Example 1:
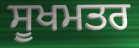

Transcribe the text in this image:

ਸੂਖਮਤਰ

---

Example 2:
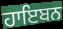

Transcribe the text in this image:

ਹਾਇਬਨ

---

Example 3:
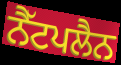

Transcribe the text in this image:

ਨੈੱਟਪਲੈਨ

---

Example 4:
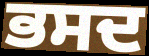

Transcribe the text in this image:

ਭਸਦ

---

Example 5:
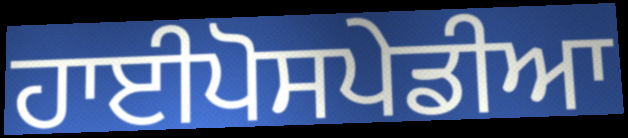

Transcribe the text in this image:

ਹਾਈਪੋਸਪੇਡੀਆ